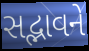
સદ્ભાવને